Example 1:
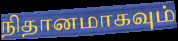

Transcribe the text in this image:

நிதானமாகவும்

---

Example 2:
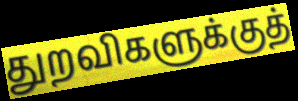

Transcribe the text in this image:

துறவிகளுக்குத்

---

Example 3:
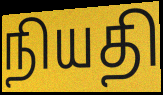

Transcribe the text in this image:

நியதி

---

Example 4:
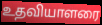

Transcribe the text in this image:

உதவியாளரை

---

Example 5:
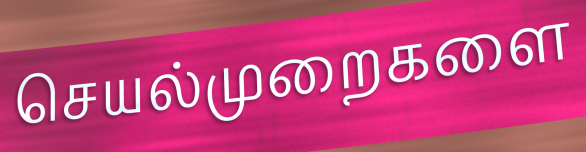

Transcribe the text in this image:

செயல்முறைகளை